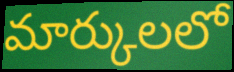
మార్కులలో